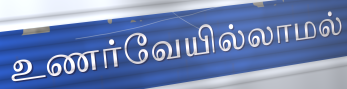
உணர்வேயில்லாமல்